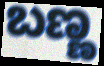
ಬಣ್ಣ